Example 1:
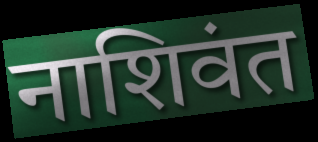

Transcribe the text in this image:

नाशिवंत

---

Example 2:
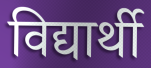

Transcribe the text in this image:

विद्यार्थी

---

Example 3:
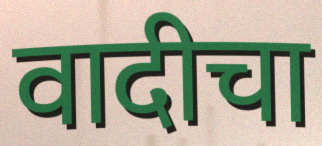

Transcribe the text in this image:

वादीचा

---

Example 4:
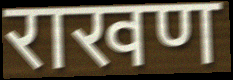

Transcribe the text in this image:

राखण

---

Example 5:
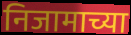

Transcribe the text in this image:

निजामाच्या